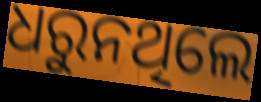
ଧରୁନଥିଲେ